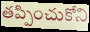
తప్పించుకోని